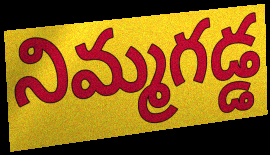
నిమ్మగడ్డ